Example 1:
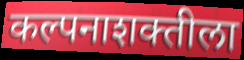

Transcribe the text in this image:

कल्पनाशक्तीला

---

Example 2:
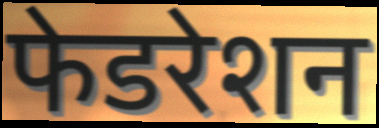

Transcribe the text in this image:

फेडरेशन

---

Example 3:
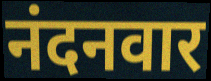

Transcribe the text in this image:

नंदनवार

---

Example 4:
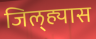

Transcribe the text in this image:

जिल्ह्यास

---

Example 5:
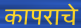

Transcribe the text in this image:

कापराचे